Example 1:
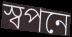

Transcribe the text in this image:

স্বপনে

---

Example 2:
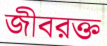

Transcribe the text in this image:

জীবরক্ত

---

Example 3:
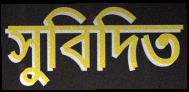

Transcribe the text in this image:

সুবিদিত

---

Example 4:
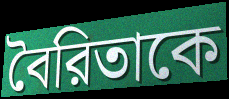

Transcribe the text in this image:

বৈরিতাকে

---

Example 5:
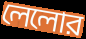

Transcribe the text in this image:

লেলোর